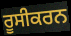
ਰੂਸੀਕਰਨ